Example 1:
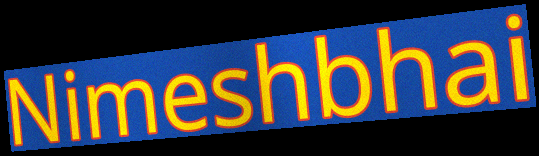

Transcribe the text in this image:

Nimeshbhai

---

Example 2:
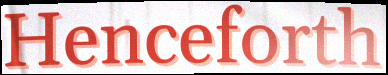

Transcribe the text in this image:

Henceforth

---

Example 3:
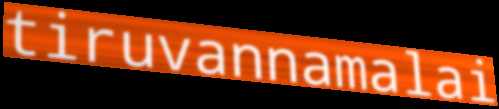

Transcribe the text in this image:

tiruvannamalai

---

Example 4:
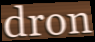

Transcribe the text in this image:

dron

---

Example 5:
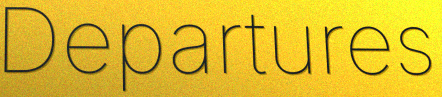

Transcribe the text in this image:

Departures